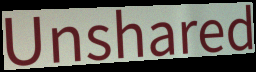
Unshared